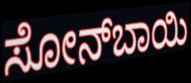
ಸೋನ್‍ಬಾಯಿ